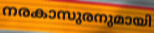
നരകാസുരനുമായി